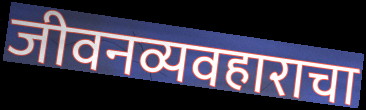
जीवनव्यवहाराचा